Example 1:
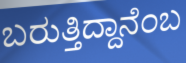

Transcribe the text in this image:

ಬರುತ್ತಿದ್ದಾನೆಂಬ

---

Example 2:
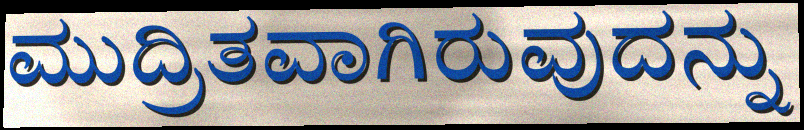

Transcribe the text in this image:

ಮುದ್ರಿತವಾಗಿರುವುದನ್ನು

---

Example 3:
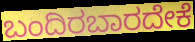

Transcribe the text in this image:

ಬಂದಿರಬಾರದೇಕೆ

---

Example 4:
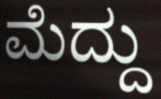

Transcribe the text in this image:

ಮೆದ್ದು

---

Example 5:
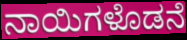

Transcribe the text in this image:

ನಾಯಿಗಳೊಡನೆ